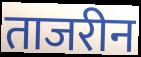
ताजरीन